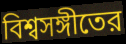
বিশ্বসঙ্গীতের